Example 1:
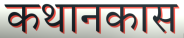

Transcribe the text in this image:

कथानकास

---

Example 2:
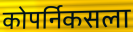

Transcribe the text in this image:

कोपर्निकसला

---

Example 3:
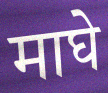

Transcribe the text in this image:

माघे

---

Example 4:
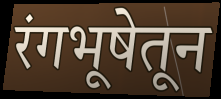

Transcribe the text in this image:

रंगभूषेतून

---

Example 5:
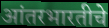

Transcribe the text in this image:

आंतरभारतीचे